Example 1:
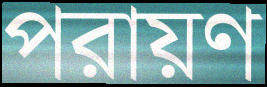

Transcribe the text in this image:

পরায়ণ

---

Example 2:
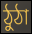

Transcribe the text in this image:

ঠুঠা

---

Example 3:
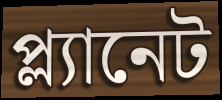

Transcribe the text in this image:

প্ল্যানেট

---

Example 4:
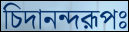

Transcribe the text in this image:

চিদানন্দরূপঃ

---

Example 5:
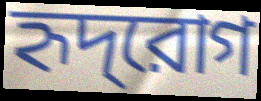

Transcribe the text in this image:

হৃদ্‌রোগ